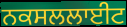
ਨਕਸਲਲਾਈਟ